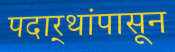
पदार्थांपासून